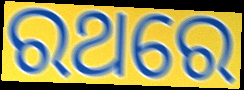
ରଥରେ